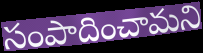
సంపాదించామని